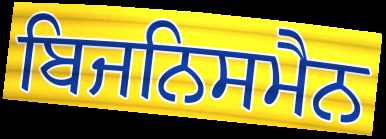
ਬਿਜਨਿਸਮੈਨ